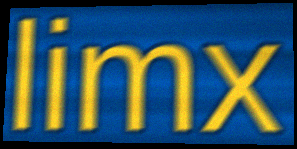
limx